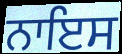
ਨਾਇਸ